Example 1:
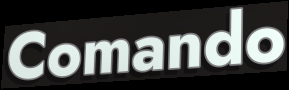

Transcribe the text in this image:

Comando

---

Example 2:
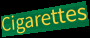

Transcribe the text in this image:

Cigarettes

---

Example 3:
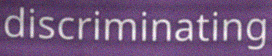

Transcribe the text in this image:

discriminating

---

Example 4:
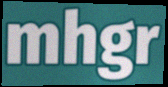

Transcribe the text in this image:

mhgr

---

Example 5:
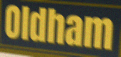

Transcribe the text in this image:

Oldham